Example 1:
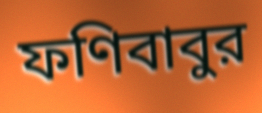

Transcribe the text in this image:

ফণিবাবুর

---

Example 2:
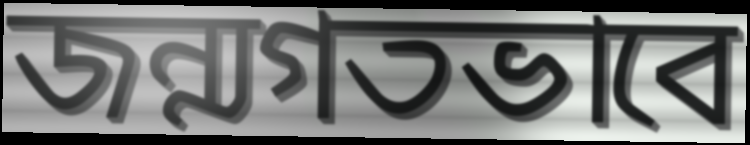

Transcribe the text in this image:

জন্মগতভাবে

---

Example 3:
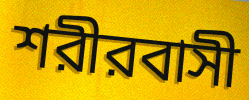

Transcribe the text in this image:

শরীরবাসী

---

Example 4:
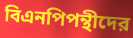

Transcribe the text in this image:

বিএনপিপন্থীদের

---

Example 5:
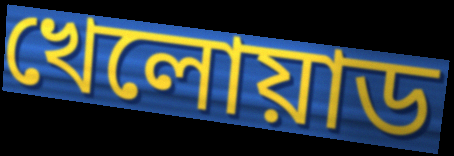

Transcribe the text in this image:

খেলোয়াড